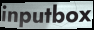
inputbox